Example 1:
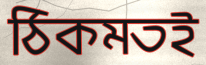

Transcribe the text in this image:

ঠিকমতই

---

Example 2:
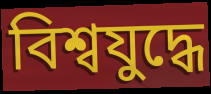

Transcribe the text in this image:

বিশ্বযুদ্ধে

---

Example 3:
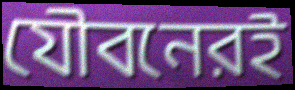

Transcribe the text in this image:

যৌবনেরই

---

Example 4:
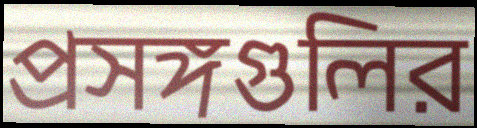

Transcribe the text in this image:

প্রসঙ্গগুলির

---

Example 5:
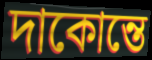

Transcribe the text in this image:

দাকোন্তে